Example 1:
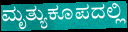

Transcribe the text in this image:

ಮೃತ್ಯುಕೂಪದಲ್ಲಿ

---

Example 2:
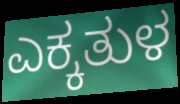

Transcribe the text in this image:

ಎಕ್ಕತುಳ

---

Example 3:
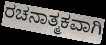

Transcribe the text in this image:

ರಚನಾತ್ಮಕವಾಗಿ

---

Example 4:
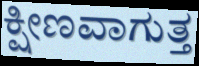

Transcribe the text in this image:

ಕ್ಷೀಣವಾಗುತ್ತ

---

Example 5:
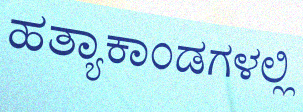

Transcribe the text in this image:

ಹತ್ಯಾಕಾಂಡಗಳಲ್ಲಿ